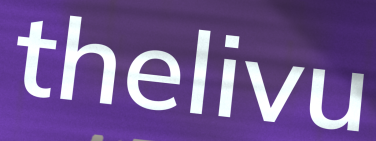
thelivu